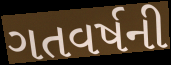
ગતવર્ષની